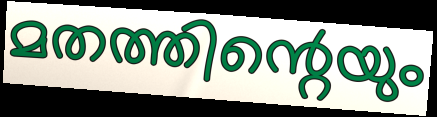
മതത്തിന്റെയും